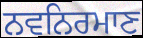
ਨਵਨਿਰਮਾਣ